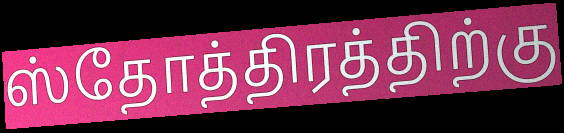
ஸ்தோத்திரத்திற்கு